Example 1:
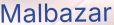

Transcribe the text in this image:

Malbazar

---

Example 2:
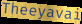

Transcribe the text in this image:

Theeyavai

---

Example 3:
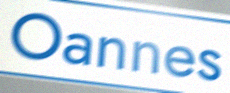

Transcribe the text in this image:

Oannes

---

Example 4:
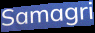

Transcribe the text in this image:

Samagri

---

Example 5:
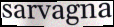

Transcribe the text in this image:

sarvagna